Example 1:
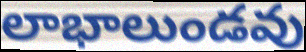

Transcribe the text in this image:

లాభాలుండవు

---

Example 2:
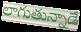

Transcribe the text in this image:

లాగుతున్నాడే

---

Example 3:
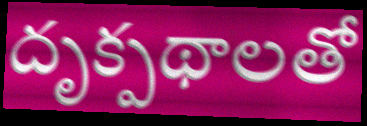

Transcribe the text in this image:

దృక్పథాలతో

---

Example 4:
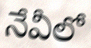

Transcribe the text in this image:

నేవీలో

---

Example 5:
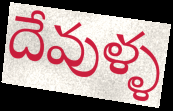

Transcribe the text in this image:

దేవుళ్ళ